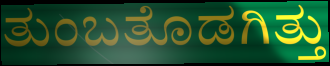
ತುಂಬತೊಡಗಿತ್ತು